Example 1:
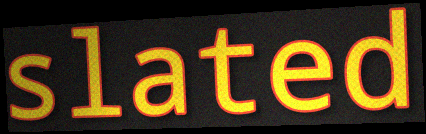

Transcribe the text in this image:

slated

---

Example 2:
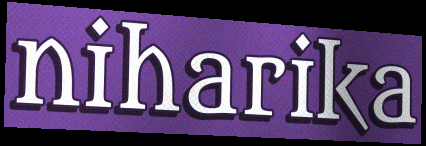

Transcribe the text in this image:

niharika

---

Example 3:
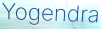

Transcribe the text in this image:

Yogendra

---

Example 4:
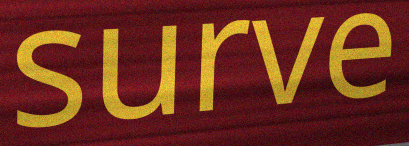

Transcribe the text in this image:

surve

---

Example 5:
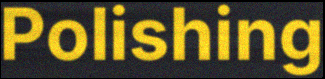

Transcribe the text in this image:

Polishing